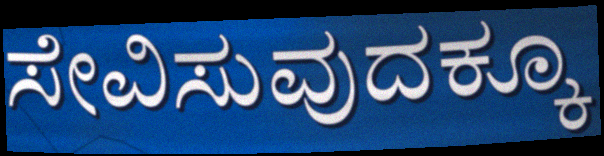
ಸೇವಿಸುವುದಕ್ಕೂ